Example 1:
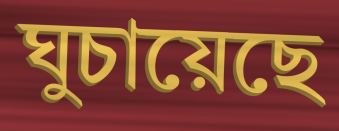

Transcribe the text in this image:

ঘুচায়েছে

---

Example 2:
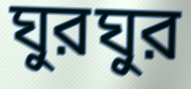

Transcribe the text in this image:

ঘুরঘুর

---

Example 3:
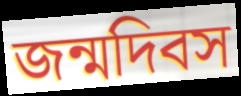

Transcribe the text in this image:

জন্মদিবস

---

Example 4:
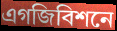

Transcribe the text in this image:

এগজিবিশনে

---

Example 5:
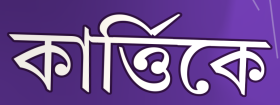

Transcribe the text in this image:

কার্ত্তিকে